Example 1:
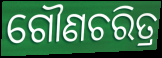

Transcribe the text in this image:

ଗୌଣଚରିତ୍ର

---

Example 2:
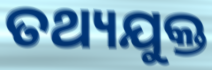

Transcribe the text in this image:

ତଥ୍ୟଯୁକ୍ତ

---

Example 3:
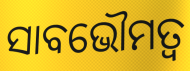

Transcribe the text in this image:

ସାବଭୌମତ୍ୱ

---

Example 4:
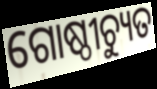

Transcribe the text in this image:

ଗୋଷ୍ଠୀଚ୍ୟୁତ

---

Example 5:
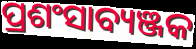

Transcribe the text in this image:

ପ୍ରଶଂସାବ୍ୟଞ୍ଜକ